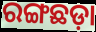
ରଙ୍ଗଛଡ଼ା